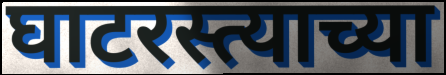
घाटरस्त्याच्या